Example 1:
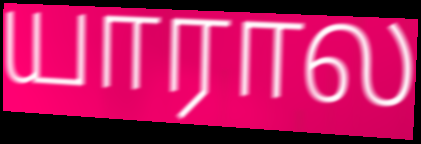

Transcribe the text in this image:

யாரால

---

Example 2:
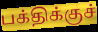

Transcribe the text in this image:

பக்திக்குச்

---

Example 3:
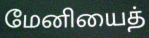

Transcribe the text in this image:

மேனியைத்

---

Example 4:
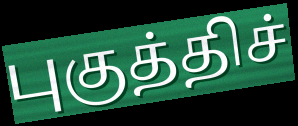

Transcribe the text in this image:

புகுத்திச்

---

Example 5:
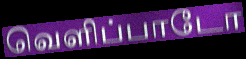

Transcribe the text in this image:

வெளிப்பாடோ